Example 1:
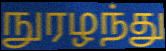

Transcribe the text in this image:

நுரழந்து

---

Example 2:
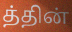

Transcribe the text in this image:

த்தின்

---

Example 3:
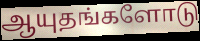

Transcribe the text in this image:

ஆயுதங்களோடு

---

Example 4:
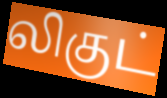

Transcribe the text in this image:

லிகுட்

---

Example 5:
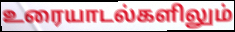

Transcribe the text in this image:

உரையாடல்களிலும்